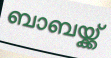
ബാബയ്ക്ക്